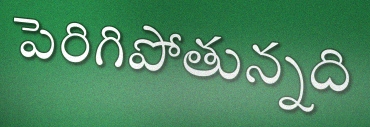
పెరిగిపోతున్నది